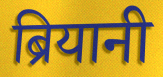
ब्रियानी